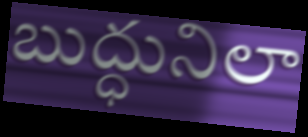
బుద్ధునిలా